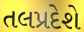
તલપ્રદેશે